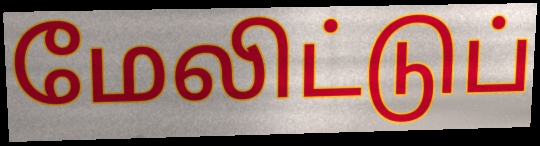
மேலிட்டுப்